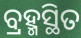
ବ୍ରହ୍ମସ୍ଥିତ